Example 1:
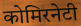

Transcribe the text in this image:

कोमिरनेटी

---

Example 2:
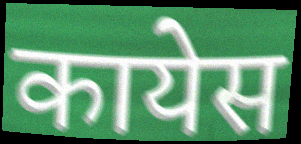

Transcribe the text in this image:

कायेस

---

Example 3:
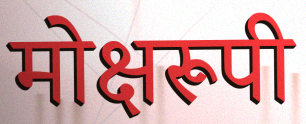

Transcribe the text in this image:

मोक्षरूपी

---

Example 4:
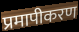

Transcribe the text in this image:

प्रमापीकरण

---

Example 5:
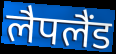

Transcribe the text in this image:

लैपलैंड